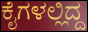
ಕೈಗಳಲ್ಲಿದ್ದ